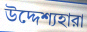
উদ্দেশ্যহারা